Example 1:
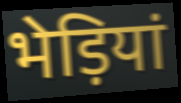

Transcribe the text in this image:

भेड़ियां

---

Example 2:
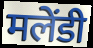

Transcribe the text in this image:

मलेंडी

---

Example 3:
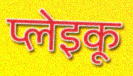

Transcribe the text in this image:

प्लेइकू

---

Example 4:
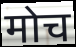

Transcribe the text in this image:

मोच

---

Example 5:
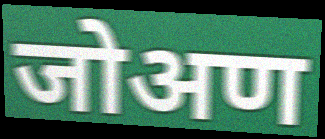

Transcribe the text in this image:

जोअण